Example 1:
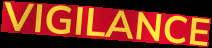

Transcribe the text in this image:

VIGILANCE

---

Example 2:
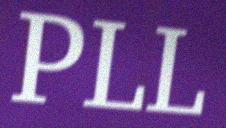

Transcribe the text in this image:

PLL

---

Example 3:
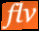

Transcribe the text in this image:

flv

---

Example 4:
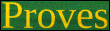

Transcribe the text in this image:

Proves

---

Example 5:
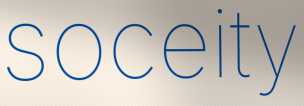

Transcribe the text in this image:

soceity